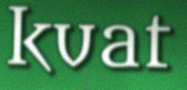
kuat